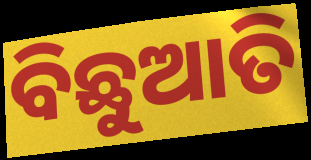
ବିଛୁଆତି